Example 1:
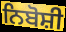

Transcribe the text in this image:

ਨਿਬੋਸ਼ੀ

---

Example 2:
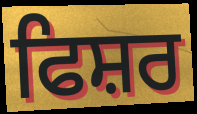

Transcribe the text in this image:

ਫਿਸ਼ਰ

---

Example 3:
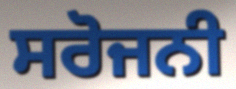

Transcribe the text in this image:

ਸਰੋਜਨੀ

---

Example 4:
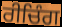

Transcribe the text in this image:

ਰੀਚਿੰਗ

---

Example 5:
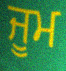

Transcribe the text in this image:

ਜੂਮ